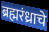
ब्रह्मरंध्राचे